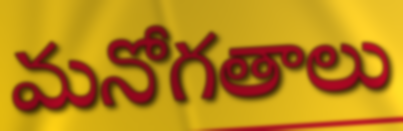
మనోగతాలు